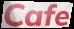
Cafe